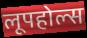
लूपहोल्स